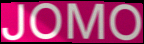
JOMO